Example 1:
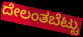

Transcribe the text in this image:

ದೇಲಂತಬೆಟ್ಟು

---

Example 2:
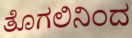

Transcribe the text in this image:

ತೊಗಲಿನಿಂದ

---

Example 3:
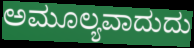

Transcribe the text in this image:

ಅಮೂಲ್ಯವಾದುದು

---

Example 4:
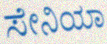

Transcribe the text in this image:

ಸೇನಿಯಾ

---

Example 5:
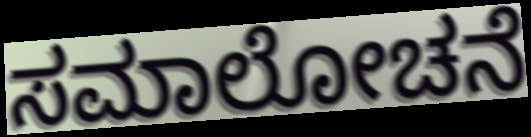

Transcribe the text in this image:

ಸಮಾಲೋಚನೆ